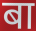
बा